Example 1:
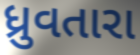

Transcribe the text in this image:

ધ્રુવતારા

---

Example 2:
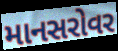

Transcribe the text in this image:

માનસરોવર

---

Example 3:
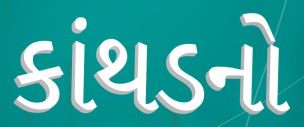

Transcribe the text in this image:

કાંથડનો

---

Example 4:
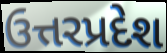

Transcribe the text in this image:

ઉત્તરપ્રદેશ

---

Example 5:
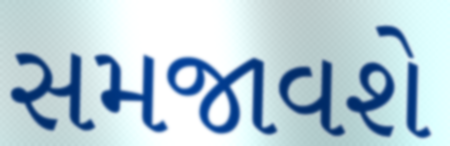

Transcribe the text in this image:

સમજાવશે